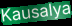
Kausalya